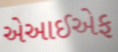
એઆઈએફ